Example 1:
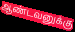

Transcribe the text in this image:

ஆண்டவனுக்கு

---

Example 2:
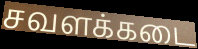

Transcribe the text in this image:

சவளக்கடை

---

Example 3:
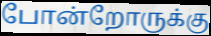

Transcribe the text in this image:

போன்றோருக்கு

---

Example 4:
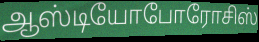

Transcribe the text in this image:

ஆஸ்டியோபோரோசிஸ்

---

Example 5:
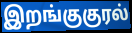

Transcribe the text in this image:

இறங்குகுரல்